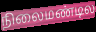
நிலைமண்டில